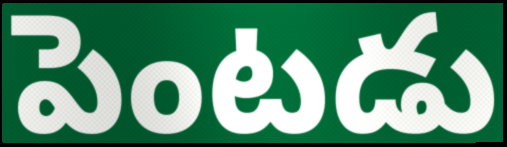
పెంటడు